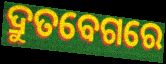
ଦ୍ରୁତବେଗରେ